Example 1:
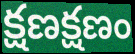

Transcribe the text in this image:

క్షణక్షణం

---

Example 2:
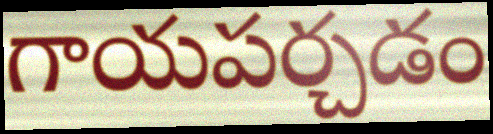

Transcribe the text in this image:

గాయపర్చడం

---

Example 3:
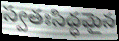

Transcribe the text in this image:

స్వతఃసిద్ధమైన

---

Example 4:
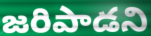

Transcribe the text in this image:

జరిపాడని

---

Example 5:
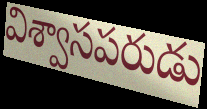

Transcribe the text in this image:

విశ్వాసపరుడు